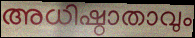
അധിഷ്ഠാതാവും